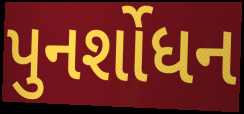
પુનર્શોધન